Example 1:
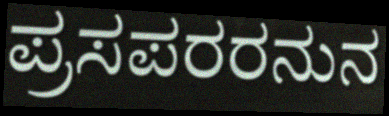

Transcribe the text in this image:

ಪ್ರಸಪರರನುನ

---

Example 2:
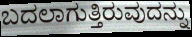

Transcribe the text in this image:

ಬದಲಾಗುತ್ತಿರುವುದನ್ನು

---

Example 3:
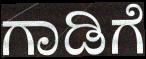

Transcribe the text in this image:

ಗಾಡಿಗೆ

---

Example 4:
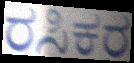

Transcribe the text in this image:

ರಸಿಕರ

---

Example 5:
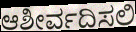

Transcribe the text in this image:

ಆಶೀರ್ವದಿಸಲಿ